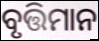
ବୃତ୍ତିମାନ